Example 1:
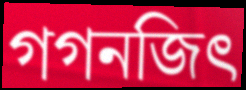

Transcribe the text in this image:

গগনজিৎ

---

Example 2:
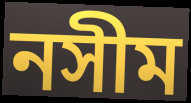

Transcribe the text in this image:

নসীম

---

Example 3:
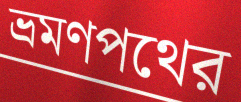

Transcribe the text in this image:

ভ্রমণপথের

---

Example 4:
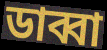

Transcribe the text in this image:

ডাব্বা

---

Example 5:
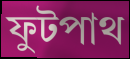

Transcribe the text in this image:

ফুটপাথ